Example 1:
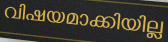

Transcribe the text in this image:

വിഷയമാക്കിയില്ല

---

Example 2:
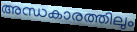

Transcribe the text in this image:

അന്ധകാരത്തിലും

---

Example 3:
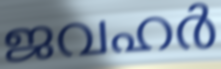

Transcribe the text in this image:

ജവഹർ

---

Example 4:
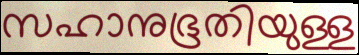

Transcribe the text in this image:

സഹാനുഭൂതിയുള്ള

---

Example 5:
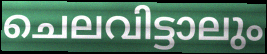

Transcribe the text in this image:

ചെലവിട്ടാലും